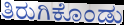
ತಿರುಗಿಕೊಂಡು